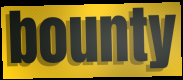
bounty